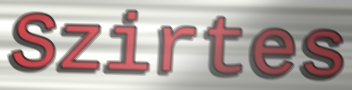
Szirtes